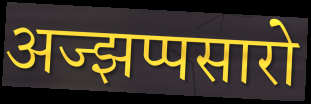
अज्झप्पसारो